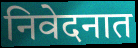
निवेदनात